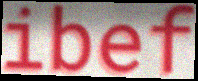
ibef